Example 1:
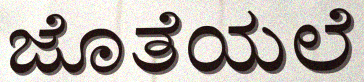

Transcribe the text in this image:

ಜೊತೆಯಲೆ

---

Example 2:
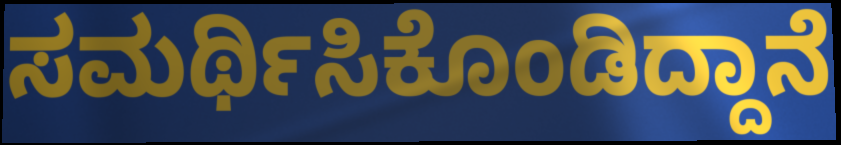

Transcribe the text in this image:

ಸಮರ್ಥಿಸಿಕೊಂಡಿದ್ದಾನೆ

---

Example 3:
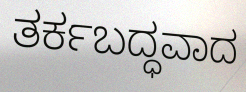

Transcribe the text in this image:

ತರ್ಕಬದ್ಧವಾದ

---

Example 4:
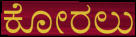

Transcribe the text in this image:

ಕೋರಲು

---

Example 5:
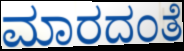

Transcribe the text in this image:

ಮಾರದಂತೆ